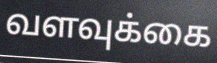
வளவுக்கை